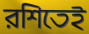
রশিতেই